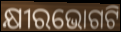
କ୍ଷୀରଭୋଗଟି